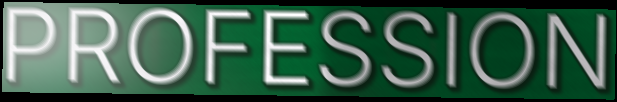
PROFESSION